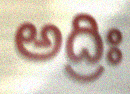
అద్రిః